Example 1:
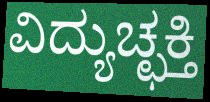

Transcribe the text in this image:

ವಿದ್ಯುಚ್ಛಕ್ತಿ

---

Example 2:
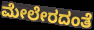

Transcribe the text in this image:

ಮೇಲೇರದಂತೆ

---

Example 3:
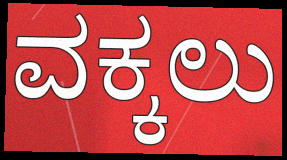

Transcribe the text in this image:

ವಕ್ಕಲು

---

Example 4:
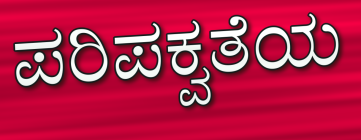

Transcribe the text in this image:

ಪರಿಪಕ್ವತೆಯ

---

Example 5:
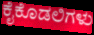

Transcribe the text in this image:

ಕೈಕೊಡಲಿಗಳು